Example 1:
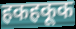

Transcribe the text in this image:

हकहकूक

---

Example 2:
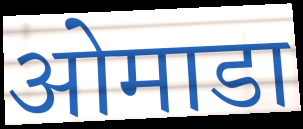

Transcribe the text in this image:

ओमाडा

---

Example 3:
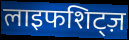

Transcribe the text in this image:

लाइफशिट्ज़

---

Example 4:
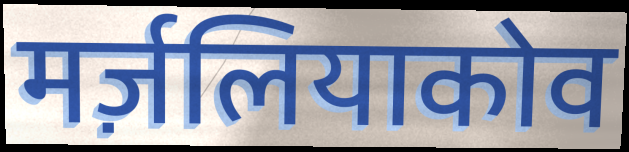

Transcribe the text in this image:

मर्ज़लियाकोव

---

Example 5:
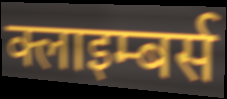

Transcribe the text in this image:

क्लाइम्बर्स